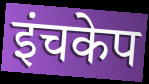
इंचकेप